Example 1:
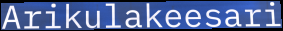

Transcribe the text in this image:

Arikulakeesari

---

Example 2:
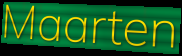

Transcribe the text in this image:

Maarten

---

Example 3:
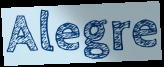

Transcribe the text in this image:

Alegre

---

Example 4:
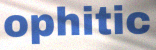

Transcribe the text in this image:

ophitic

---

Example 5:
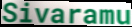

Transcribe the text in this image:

Sivaramu